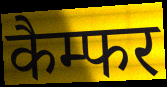
कैम्फर